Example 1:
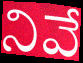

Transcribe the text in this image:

నివే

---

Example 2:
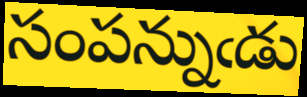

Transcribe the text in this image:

సంపన్నుఁడు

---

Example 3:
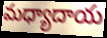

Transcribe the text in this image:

మధ్యాదాయ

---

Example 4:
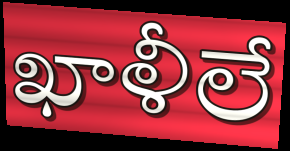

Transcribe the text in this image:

ఖాళీలే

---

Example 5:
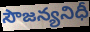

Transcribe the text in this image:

సౌజన్యనిధీ